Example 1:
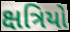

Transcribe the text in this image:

ક્ષત્રિયો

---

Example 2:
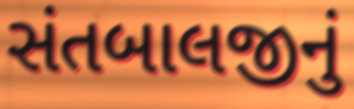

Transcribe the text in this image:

સંતબાલજીનું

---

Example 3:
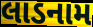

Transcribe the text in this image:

લાડનામ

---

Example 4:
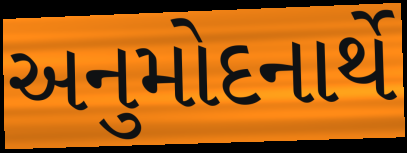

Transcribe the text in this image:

અનુમોદનાર્થે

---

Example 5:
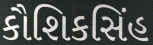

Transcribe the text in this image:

કૌશિકસિંહ